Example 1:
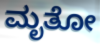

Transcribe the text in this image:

ಮೃತೋ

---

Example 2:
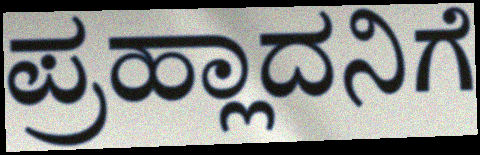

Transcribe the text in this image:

ಪ್ರಹ್ಲಾದನಿಗೆ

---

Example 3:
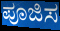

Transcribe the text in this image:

ಪೂಜಿಸ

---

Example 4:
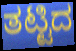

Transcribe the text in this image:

ತಟ್ಟಿದ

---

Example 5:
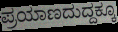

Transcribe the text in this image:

ಪ್ರಯಾಣದುದ್ದಕ್ಕೂ